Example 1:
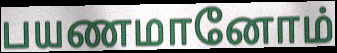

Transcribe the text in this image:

பயணமானோம்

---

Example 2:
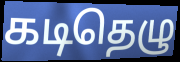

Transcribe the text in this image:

கடிதெழு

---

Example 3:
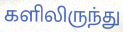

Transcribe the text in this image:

களிலிருந்து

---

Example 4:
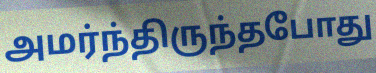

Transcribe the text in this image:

அமர்ந்திருந்தபோது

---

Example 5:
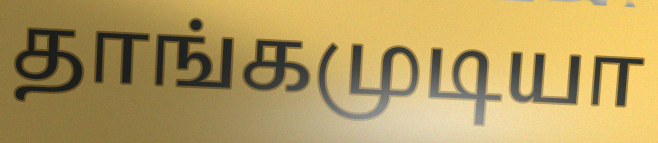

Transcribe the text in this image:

தாங்கமுடியா